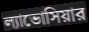
ল্যাভোসিয়ার